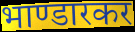
भाण्डारकर